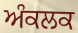
ਅੰਕਲਕ